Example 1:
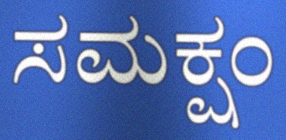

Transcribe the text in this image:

ಸಮಕ್ಷಂ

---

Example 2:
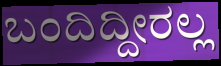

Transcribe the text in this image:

ಬಂದಿದ್ದೀರಲ್ಲ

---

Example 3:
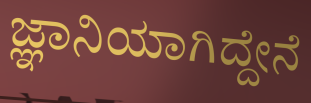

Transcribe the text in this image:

ಜ್ಞಾನಿಯಾಗಿದ್ದೇನೆ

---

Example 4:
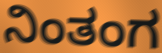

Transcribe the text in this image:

ನಿಂತಂಗ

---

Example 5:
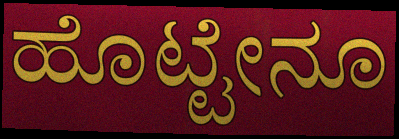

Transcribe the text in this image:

ಹೊಟ್ಟೇನೂ